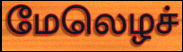
மேலெழச்